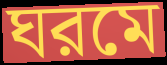
ঘরমে